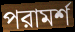
পরামর্শ